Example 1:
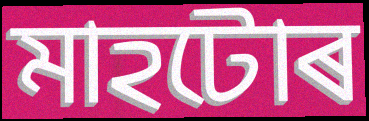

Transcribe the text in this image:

মাহটোৰ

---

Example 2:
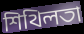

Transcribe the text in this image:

শিথিলতা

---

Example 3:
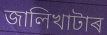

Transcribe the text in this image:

জালিখাটাৰ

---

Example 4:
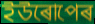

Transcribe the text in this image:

ইউৰোপেৰ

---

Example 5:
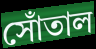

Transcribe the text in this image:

সোঁতাল